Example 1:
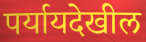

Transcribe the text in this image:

पर्यायदेखील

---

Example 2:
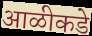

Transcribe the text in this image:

आळीकडे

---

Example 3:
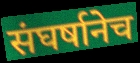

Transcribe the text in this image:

संघर्षानेच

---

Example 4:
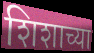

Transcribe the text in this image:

शिशाच्या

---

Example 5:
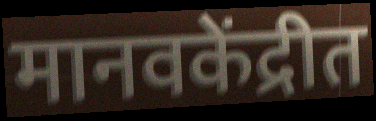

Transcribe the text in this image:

मानवकेंद्रीत